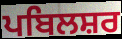
ਪਬਿਲਸ਼ਰ